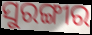
ସୁରଙ୍ଗୀର